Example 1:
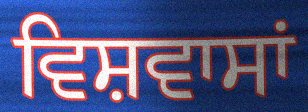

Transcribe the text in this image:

ਵਿਸ਼ਵਾਸਾਂ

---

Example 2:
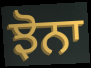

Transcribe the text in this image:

ਝੋਨਾ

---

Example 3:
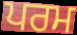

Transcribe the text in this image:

ਪਰਮ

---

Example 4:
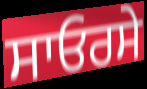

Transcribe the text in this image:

ਸਾਓਰਸੇ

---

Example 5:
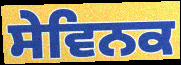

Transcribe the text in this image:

ਸੇਵਿਨਕ